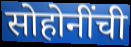
सोहोनींची